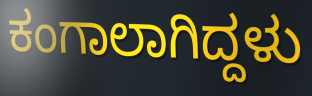
ಕಂಗಾಲಾಗಿದ್ದಳು